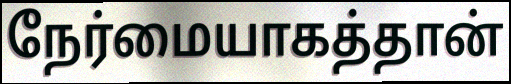
நேர்மையாகத்தான்